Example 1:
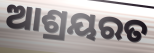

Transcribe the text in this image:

ଆଶ୍ରୟରତ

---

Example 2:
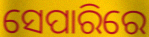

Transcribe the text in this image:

ସେପାରିରେ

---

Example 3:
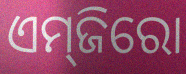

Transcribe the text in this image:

ଏମ୍‌ଜିରୋ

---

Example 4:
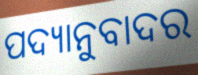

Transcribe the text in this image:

ପଦ୍ୟାନୁବାଦର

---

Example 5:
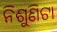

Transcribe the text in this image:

ନିଶୁଣିଟା